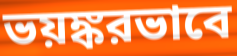
ভয়ঙ্করভাবে